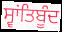
ਸ੍ਵਾਂਤਿਬੂੰਦ